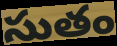
సుతం